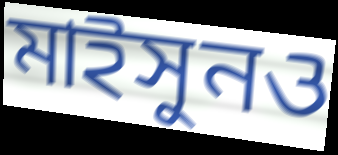
মাইসুনও